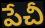
పేచీ